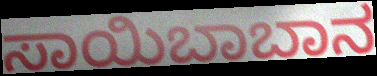
ಸಾಯಿಬಾಬಾನ